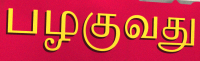
பழகுவது